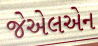
જેએલએન